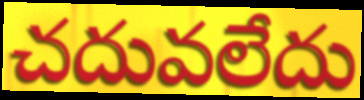
చదువలేదు